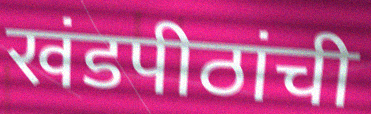
खंडपीठांची